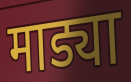
माड्या